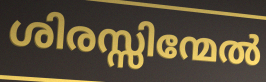
ശിരസ്സിന്മേൽ